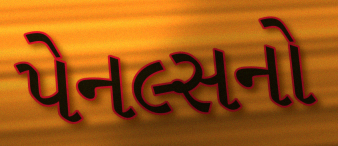
પેનલ્સનો